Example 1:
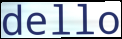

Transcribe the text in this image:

dello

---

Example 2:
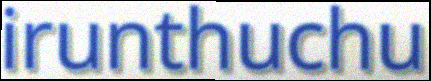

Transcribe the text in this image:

irunthuchu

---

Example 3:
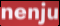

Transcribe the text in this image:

nenju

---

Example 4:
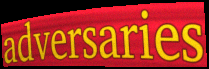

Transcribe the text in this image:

adversaries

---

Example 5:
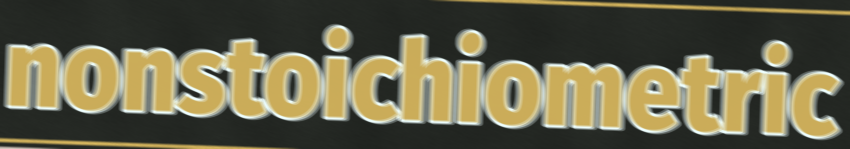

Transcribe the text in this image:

nonstoichiometric